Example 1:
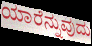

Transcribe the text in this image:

ಯಾರೆನ್ನುವುದು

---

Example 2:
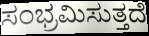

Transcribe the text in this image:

ಸಂಭ್ರಮಿಸುತ್ತದೆ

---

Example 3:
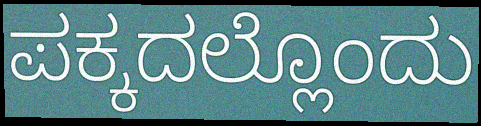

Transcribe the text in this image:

ಪಕ್ಕದಲ್ಲೊಂದು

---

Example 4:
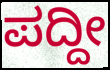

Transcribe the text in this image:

ಪದ್ದೀ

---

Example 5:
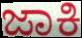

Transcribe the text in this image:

ಜಾಕಿ